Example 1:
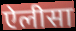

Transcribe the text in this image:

ऐलीसा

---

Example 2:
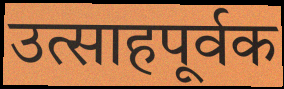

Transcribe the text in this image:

उत्साहपूर्वक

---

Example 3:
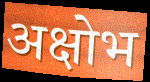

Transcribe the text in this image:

अक्षोभ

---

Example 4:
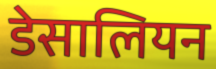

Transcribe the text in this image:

डेसालियन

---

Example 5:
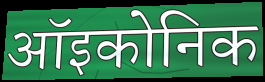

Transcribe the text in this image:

ऑइकोनिक